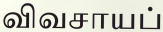
விவசாயப்